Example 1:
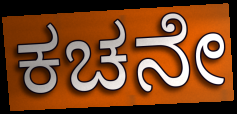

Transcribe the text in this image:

ಕಚನೇ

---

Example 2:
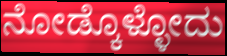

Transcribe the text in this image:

ನೋಡ್ಕೊಳ್ಳೋದು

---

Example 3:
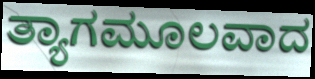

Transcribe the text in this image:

ತ್ಯಾಗಮೂಲವಾದ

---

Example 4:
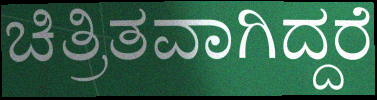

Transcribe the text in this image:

ಚಿತ್ರಿತವಾಗಿದ್ದರೆ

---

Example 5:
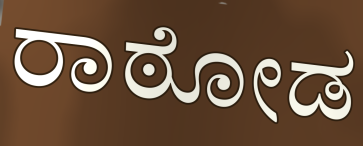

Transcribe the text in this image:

ರಾಠೋಡ